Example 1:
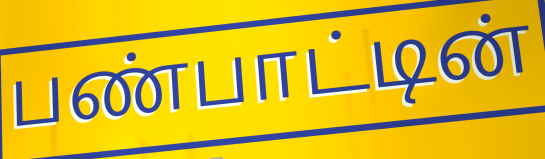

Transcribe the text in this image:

பண்பாட்டின்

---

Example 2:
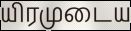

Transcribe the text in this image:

யிரமுடைய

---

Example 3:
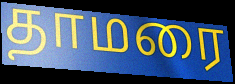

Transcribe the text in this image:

தாமரை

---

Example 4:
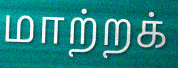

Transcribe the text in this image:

மாற்றக்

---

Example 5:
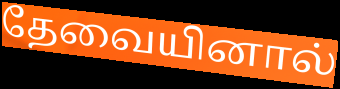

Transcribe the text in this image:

தேவையினால்